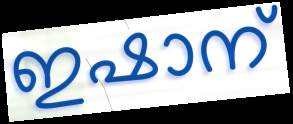
ഇഷാന്